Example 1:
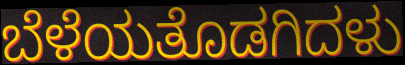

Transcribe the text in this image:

ಬೆಳೆಯತೊಡಗಿದಳು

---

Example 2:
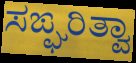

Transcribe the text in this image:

ಸಙ್ಘರಿತ್ವಾ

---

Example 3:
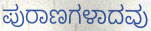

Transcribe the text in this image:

ಪುರಾಣಗಳಾದವು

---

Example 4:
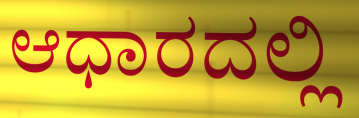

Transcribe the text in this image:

ಆಧಾರದಲ್ಲಿ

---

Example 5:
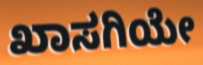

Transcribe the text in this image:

ಖಾಸಗಿಯೇ